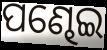
ପଣ୍ଢେଇ